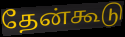
தேன்கூடு